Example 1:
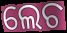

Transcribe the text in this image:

ଲେଚ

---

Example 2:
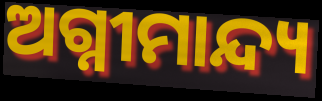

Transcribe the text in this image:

ଅଗ୍ନୀମାନ୍ଦ୍ୟ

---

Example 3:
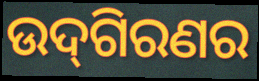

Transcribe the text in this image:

ଉଦ୍‌ଗିରଣର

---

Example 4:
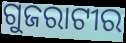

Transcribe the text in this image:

ଗୁଜରାଟୀର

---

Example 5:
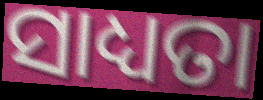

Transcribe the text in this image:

ସାଧ୍ୟତା